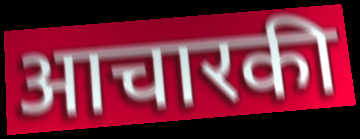
आचारकी